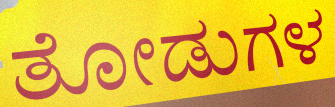
ತೋಡುಗಳ